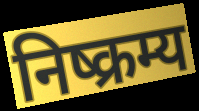
निष्क्रम्य